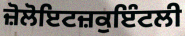
ਜ਼ੋਲੋਇਟਜ਼ਕੁਇੰਟਲੀ